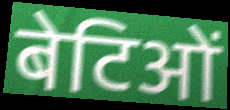
बेटिओं